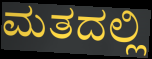
ಮತದಲ್ಲಿ